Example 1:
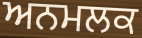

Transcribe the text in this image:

ਅਨਮਲਕ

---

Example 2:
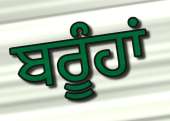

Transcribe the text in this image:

ਬਰੂੰਹਾਂ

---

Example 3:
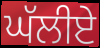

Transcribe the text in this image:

ਘੱਲੀਏ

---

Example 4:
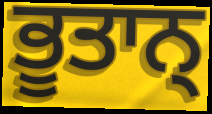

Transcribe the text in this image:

ਭੂਤਾਨ੍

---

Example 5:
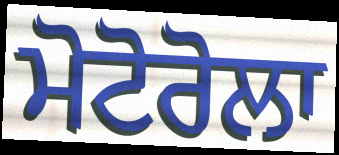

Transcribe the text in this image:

ਮੋਟੋਰੋਲਾ